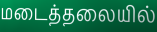
மடைத்தலையில்